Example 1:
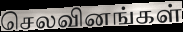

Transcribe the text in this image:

செலவினங்கள்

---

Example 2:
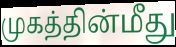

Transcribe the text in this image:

முகத்தின்மீது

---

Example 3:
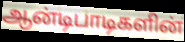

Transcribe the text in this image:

ஆன்டிபாடிகளின்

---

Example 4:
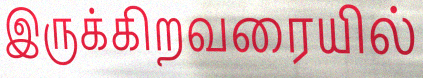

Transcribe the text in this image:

இருக்கிறவரையில்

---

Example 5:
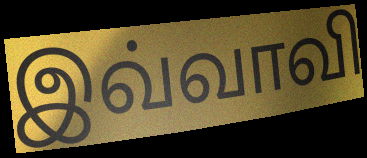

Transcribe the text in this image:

இவ்வாவி